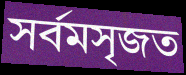
সর্বমসৃজত